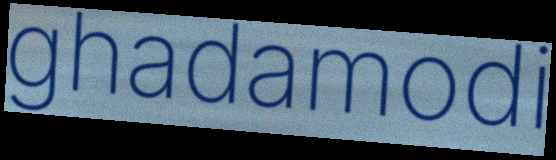
ghadamodi